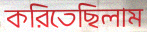
করিতেছিলাম